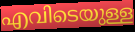
എവിടെയുള്ള